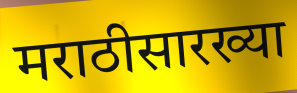
मराठीसारख्या